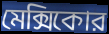
মেক্সিকোর